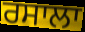
ਰਸਾਲਾ